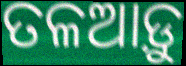
ତଳଆଡ଼ୁ